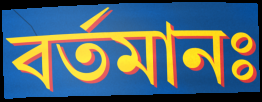
বর্তমানঃ